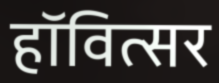
हॉवित्सर